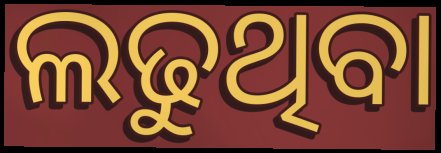
ଲଢୁଥିବା